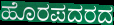
ಹೊರಪದರದ